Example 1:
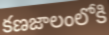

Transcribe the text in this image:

కణజాలంలోకి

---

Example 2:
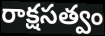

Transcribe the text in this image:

రాక్షసత్వం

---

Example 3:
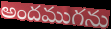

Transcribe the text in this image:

అందముగను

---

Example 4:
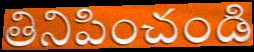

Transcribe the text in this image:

తినిపించండి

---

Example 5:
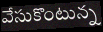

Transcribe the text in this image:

వేసుకొంటున్న